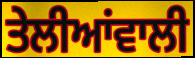
ਤੇਲੀਆਂਵਾਲੀ